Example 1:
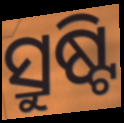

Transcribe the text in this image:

ସ୍ରୁଷ୍ଟି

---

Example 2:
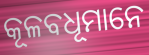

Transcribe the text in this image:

କୂଳବଧୂମାନେ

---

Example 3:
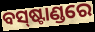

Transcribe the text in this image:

ବସ୍‍ଷ୍ଟାଣ୍ଡରେ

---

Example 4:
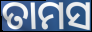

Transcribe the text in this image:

ତାମସ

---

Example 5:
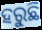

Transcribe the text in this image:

ହରୁଛି